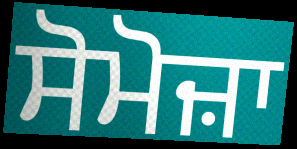
ਸੋਮੋਜ਼ਾ